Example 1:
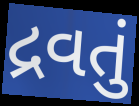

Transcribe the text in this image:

દ્રવતું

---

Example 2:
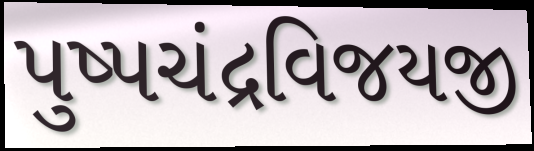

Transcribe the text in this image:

પુષ્પચંદ્રવિજયજી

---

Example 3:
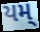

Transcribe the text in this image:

યમ્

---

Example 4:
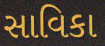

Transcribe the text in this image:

સાવિકા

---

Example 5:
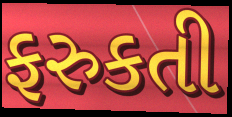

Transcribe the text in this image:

ફરુકતી